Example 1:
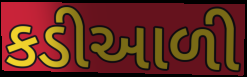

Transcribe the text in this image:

કડીઆળી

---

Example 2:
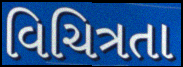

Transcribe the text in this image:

વિચિત્રતા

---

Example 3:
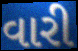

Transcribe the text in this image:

વારી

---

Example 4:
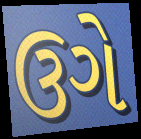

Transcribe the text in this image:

ઉગે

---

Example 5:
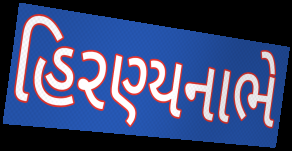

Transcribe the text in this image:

હિરણ્યનાભે